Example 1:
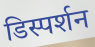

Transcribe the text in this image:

डिस्पर्शन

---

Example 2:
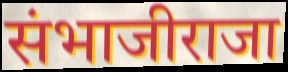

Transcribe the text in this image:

संभाजीराजा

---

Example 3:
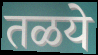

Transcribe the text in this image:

तळये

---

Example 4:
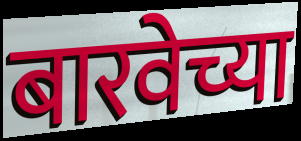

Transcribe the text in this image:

बारवेच्या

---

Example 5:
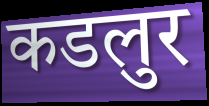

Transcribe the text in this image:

कडलुर